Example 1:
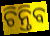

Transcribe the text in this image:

ଚିନ୍ତିବ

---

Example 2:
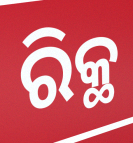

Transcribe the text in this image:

ରିକ୍ଥ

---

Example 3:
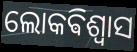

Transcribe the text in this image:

ଲୋକଵିଶ୍ଵାସ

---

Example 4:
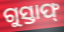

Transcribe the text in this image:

ଗୁସ୍ତାଫ୍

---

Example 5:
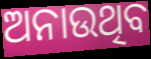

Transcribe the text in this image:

ଅନାଉଥିବ